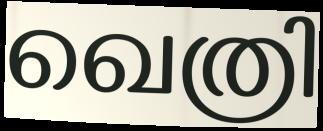
ഖെത്രി